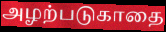
அழற்படுகாதை